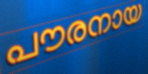
പൗരനായ